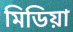
মিডিয়া